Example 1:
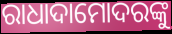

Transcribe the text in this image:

ରାଧାଦାମୋଦରଙ୍କୁ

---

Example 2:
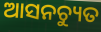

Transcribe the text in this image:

ଆସନଚ୍ୟୁତ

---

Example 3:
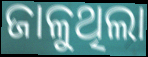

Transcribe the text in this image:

ଜାଳୁଥିଲା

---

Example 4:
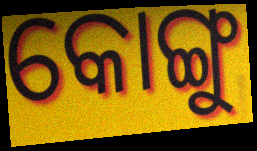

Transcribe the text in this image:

କୋଙ୍ଗୁ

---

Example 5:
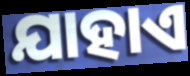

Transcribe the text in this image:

ଯାହାଏ